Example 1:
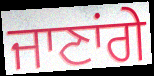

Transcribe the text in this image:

ਜਾਣਾਂਗੇ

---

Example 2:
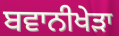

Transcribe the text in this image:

ਬਵਾਨੀਖੇੜਾ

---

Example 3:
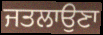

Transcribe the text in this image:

ਜਤਲਾਉਣਾ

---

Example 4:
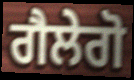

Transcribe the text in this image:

ਗੈਲੇਗੋ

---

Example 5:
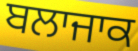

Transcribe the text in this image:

ਬਲਾਜਾਕ